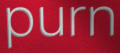
purn